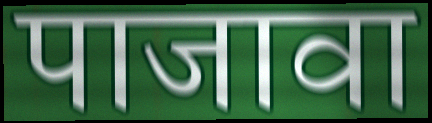
पाजावा